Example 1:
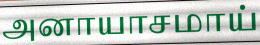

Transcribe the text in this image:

அனாயாசமாய்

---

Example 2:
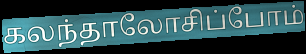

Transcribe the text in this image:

கலந்தாலோசிப்போம்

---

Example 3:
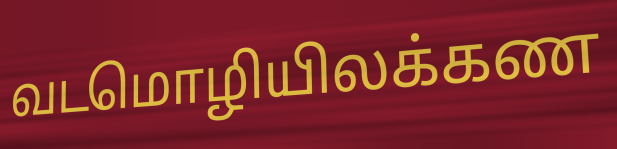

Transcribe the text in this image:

வடமொழியிலக்கண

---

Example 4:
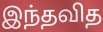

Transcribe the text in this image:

இந்தவித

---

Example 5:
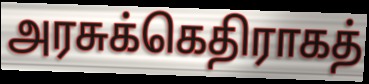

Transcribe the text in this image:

அரசுக்கெதிராகத்